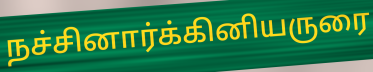
நச்சினார்க்கினியருரை